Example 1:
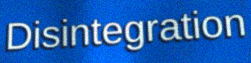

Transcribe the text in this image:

Disintegration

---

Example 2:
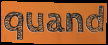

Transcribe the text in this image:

quand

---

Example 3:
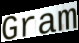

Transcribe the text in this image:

Gram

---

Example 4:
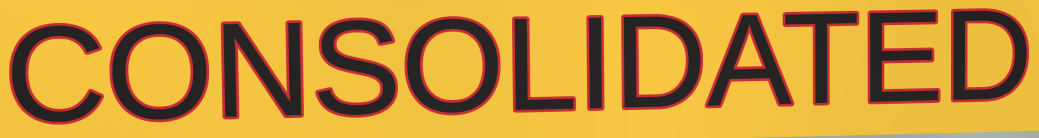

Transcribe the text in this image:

CONSOLIDATED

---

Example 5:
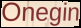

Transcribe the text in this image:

Onegin